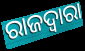
ରାଜଦ୍ୱାରା